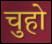
चुहो